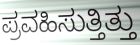
ಪ್ರವಹಿಸುತ್ತಿತ್ತು